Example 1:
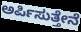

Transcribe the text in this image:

ಅರ್ಪಿಸುತ್ತೇನೆ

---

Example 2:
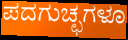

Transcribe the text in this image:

ಪದಗುಚ್ಛಗಳೂ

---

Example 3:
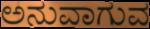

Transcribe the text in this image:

ಅನುವಾಗುವ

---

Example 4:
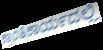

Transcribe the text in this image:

ಕ್ರಾಂತಿಕಾರ್ಯದಲ್ಲಿ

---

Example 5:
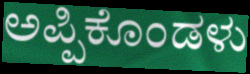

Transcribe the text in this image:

ಅಪ್ಪಿಕೊಂಡಳು